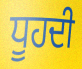
ਧੂਹਦੀ